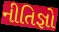
નીતિજ્ઞો